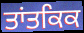
ਤਾਂਤਕਿਕ